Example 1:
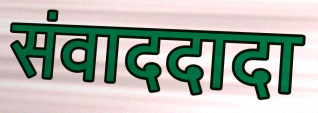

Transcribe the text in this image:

संवाददादा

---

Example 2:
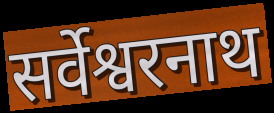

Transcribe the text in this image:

सर्वेश्वरनाथ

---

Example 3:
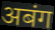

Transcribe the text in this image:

अबंग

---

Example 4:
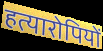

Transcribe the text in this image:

हत्‍यारोपियों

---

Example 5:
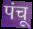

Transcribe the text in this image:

पंचू